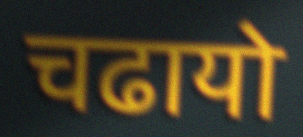
चढायो